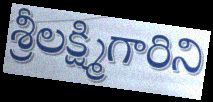
శ్రీలక్ష్మిగారిని